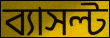
ব্যাসল্ট